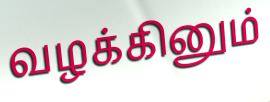
வழக்கினும்